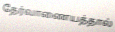
தேர்வாணையத்தால்